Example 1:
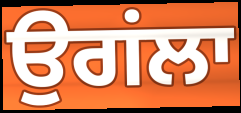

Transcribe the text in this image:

ਉਗਂਲਾ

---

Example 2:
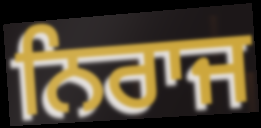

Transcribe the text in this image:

ਨਿਰਾਜ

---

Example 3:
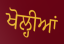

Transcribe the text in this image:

ਖੋਲ੍ਹੀਆਂ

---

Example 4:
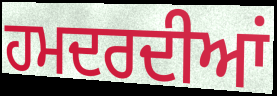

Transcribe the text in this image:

ਹਮਦਰਦੀਆਂ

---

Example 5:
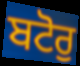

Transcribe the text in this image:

ਬਟੋਰੁ